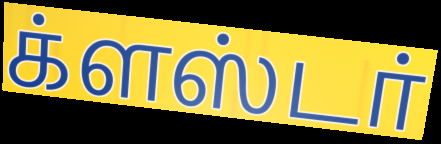
க்ளஸ்டர்